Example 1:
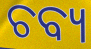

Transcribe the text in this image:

ଚବ୍ୟ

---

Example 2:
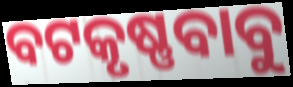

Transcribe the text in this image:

ବଟକୃଷ୍ଣବାବୁ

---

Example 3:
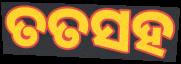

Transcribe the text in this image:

ତତସହ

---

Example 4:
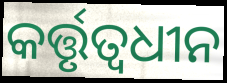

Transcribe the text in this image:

କର୍ତ୍ତୃତ୍ୱଧୀନ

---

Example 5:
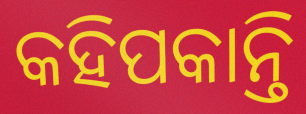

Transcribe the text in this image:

କହିପକାନ୍ତି